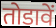
तोडावें